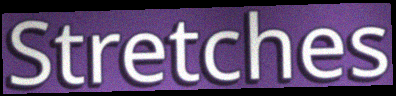
Stretches